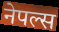
नेपल्स